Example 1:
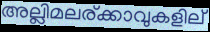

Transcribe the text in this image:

അല്ലിമലര്ക്കാവുകളില്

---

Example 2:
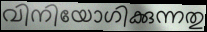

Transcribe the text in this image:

വിനിയോഗിക്കുന്നതു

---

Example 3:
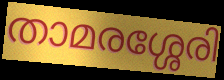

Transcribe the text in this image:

താമരശ്ശേരി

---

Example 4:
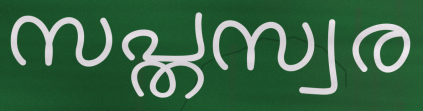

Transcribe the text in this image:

സപ്തസ്വര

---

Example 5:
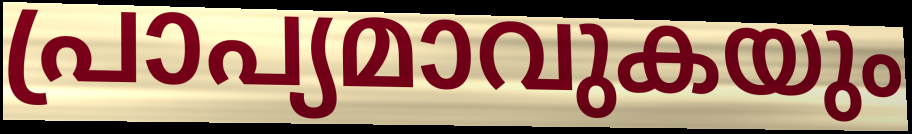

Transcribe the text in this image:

പ്രാപ്യമാവുകയും